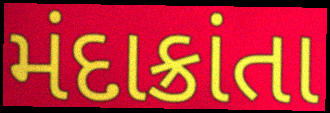
મંદાક્રાંતા